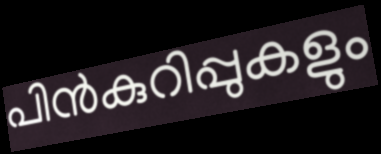
പിൻകുറിപ്പുകളും